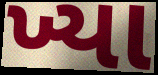
ખ્યા